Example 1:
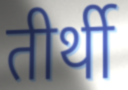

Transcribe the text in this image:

तीर्थी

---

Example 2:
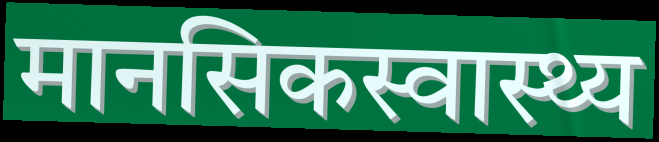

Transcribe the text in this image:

मानसिकस्वास्थ्य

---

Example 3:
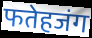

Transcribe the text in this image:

फतेहजंग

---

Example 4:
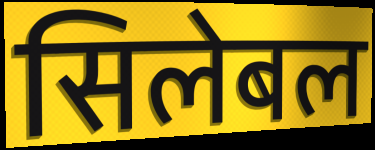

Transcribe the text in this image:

सिलेबल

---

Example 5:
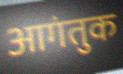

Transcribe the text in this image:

आगंतुक